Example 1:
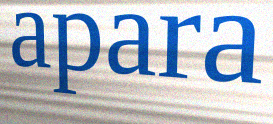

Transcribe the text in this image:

apara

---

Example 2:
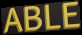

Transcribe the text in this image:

ABLE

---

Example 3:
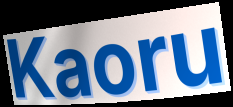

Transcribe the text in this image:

Kaoru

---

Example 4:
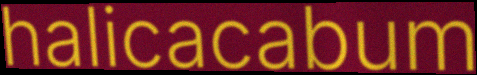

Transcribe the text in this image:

halicacabum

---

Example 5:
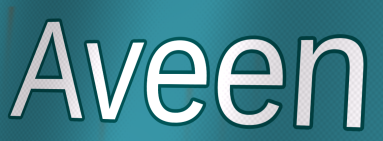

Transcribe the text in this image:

Aveen